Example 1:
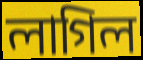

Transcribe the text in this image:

লাগিল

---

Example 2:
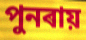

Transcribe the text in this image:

পুনৰায়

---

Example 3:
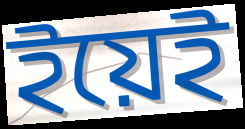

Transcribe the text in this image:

ইয়েই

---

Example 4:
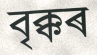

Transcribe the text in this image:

বৃক্কৰ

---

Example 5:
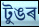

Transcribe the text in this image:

টুঙৰ